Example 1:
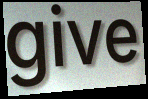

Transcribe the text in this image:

give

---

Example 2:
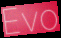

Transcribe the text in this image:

Evo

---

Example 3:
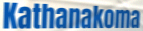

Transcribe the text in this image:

Kathanakoma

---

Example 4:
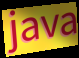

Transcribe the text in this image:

java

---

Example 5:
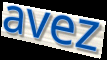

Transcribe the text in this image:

avez